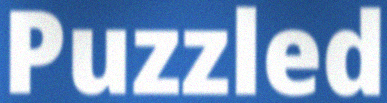
Puzzled